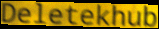
Deletekhub